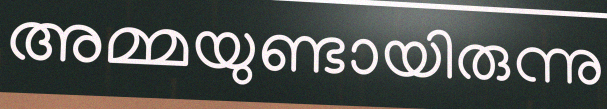
അമ്മയുണ്ടായിരുന്നു